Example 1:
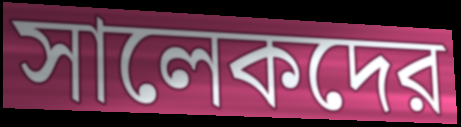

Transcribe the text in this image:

সালেকদের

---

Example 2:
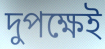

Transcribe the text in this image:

দুপক্ষেই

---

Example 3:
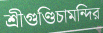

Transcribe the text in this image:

শ্রীগুণ্ডিচামন্দির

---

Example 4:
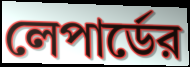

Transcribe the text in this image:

লেপার্ডের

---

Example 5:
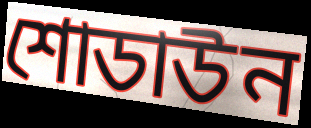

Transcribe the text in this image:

শোডাউন